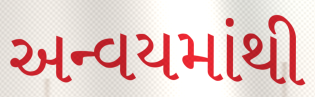
અન્વયમાંથી